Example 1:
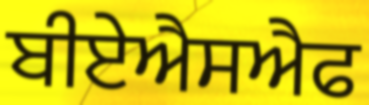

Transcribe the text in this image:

ਬੀਏਐਸਐਫ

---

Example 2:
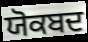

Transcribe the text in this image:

ਯੋਕਬਦ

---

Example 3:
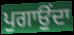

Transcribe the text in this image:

ਪੁਗਾਉਂਦਾ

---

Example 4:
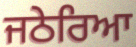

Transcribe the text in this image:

ਜਠੇਰਿਆ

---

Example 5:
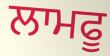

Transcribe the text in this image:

ਲਾਮਫੂ